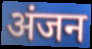
अंजन